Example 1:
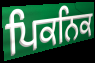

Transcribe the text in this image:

ਪਿਕਨਿਕ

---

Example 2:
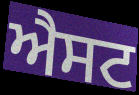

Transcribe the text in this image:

ਐਸਟ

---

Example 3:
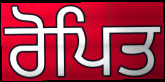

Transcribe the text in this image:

ਰੋਪਿਤ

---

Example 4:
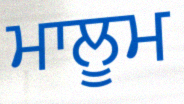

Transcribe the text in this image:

ਮਾਲੂਮ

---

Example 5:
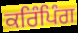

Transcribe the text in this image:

ਕਰਿੰਪਿੰਗ